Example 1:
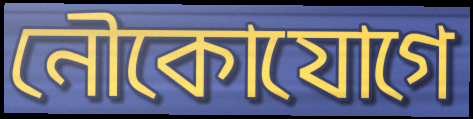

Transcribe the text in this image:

নৌকোযোগে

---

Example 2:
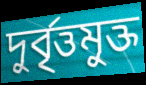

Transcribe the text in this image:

দুর্বৃত্তমুক্ত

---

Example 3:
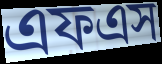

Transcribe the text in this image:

এফএস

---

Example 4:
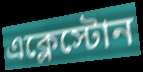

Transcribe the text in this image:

এক্লেস্টোন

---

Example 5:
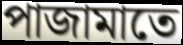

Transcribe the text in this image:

পাজামাতে